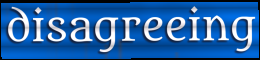
disagreeing